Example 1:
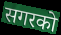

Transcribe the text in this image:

सगरको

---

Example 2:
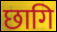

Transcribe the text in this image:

छागि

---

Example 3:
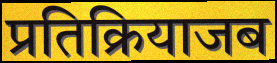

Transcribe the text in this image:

प्रतिक्रियाजब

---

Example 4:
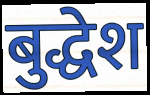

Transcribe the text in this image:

बुद्धेश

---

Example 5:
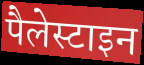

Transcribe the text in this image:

पैलेस्टाइन